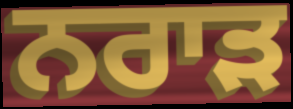
ਨਰਾੜ